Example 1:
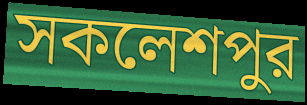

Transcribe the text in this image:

সকলেশপুর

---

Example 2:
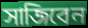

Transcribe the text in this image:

সাজিবেন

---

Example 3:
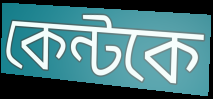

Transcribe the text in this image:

কেন্টকে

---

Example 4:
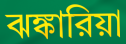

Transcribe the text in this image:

ঝঙ্কারিয়া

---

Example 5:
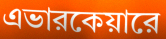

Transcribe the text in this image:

এভারকেয়ারে